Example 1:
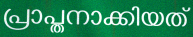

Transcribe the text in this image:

പ്രാപ്തനാക്കിയത്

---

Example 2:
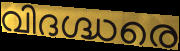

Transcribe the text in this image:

വിദഗ്ദ്ധരെ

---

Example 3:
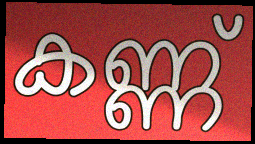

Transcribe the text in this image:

കണ്ണ്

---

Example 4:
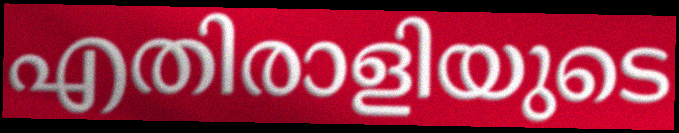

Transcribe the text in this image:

എതിരാളിയുടെ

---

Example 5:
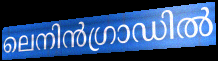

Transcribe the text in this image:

ലെനിൻഗ്രാഡിൽ